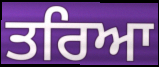
ਤਰਿਆ